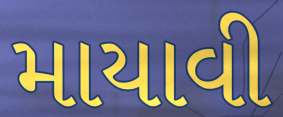
માયાવી